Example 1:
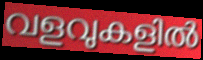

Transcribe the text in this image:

വളവുകളിൽ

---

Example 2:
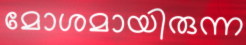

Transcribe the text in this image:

മോശമായിരുന്ന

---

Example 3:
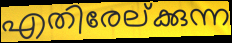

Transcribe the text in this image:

എതിരേല്ക്കുന്ന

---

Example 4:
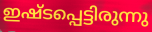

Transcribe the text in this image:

ഇഷ്ടപ്പെട്ടിരുന്നു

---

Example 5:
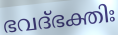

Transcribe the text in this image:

ഭവദ്ഭക്തിഃ